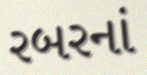
રબરનાં